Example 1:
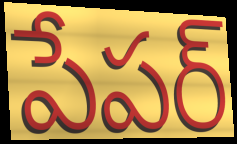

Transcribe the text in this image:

పేపర్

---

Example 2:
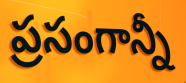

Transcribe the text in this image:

ప్రసంగాన్నీ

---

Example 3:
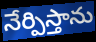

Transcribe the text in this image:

నేర్పిస్తాను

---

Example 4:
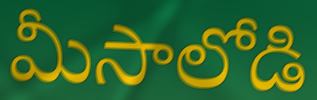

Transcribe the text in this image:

మీసాలోడి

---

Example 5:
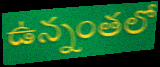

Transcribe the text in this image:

ఉన్నంతలో